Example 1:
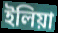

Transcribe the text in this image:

ইলিয়া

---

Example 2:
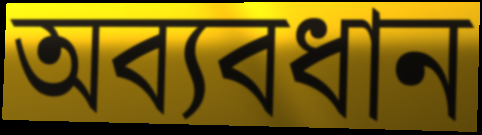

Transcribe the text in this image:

অব্যবধান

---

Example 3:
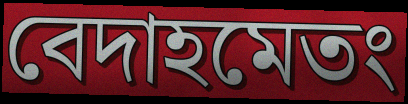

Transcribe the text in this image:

বেদাহমেতং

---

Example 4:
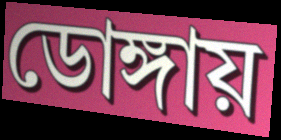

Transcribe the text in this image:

ডোঙ্গায়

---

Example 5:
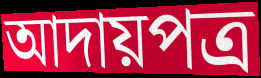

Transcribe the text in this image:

আদায়পত্র